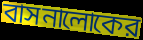
বাসনালোকের